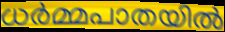
ധർമ്മപാതയിൽ